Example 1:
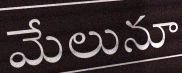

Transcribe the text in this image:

మేలునూ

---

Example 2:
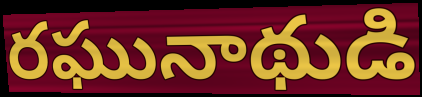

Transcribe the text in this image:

రఘునాథుడి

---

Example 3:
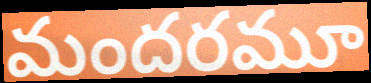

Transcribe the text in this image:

మందరమూ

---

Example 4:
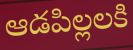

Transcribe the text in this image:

ఆడపిల్లలకి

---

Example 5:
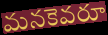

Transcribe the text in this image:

మనకెవరూ